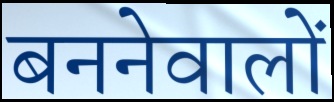
बननेवालों